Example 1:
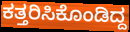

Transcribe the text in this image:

ಕತ್ತರಿಸಿಕೊಂಡಿದ್ದ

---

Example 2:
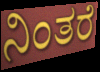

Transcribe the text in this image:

ನಿಂತರೆ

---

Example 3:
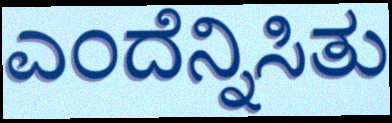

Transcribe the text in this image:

ಎಂದೆನ್ನಿಸಿತು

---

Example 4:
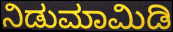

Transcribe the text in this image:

ನಿಡುಮಾಮಿಡಿ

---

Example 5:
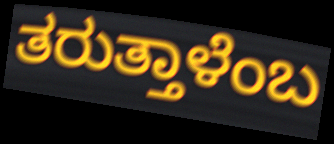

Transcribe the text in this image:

ತರುತ್ತಾಳೆಂಬ